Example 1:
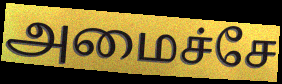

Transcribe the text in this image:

அமைச்சே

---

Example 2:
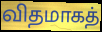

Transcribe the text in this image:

விதமாகத்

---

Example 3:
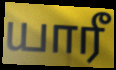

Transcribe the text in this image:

யாரீ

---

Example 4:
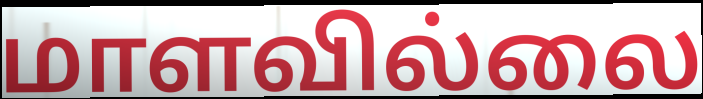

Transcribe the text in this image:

மாளவில்லை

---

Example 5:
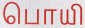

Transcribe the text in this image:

பொயி